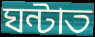
ঘন্টাত